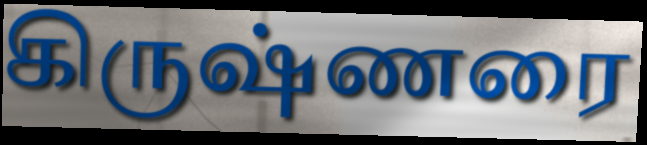
கிருஷ்ணரை